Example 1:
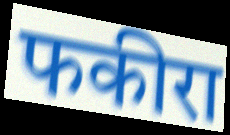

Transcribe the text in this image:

फकीरा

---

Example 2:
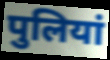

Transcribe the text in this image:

पुलियां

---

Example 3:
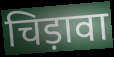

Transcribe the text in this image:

चिड़ावा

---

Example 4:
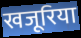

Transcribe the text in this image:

खजूरिया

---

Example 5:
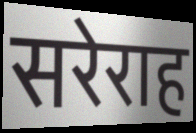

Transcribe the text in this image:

सरेराह